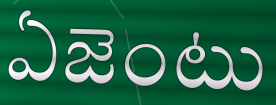
ఏజెంటు